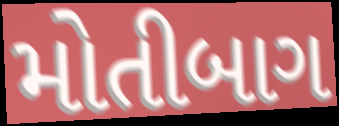
મોતીબાગ